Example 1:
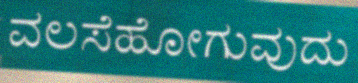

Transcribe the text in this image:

ವಲಸೆಹೋಗುವುದು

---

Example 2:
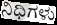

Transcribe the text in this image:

ನಿಧಿಗಳು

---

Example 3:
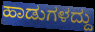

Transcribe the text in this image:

ಹಾಡುಗಳದ್ದು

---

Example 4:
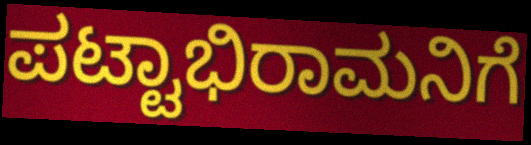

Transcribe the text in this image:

ಪಟ್ಟಾಭಿರಾಮನಿಗೆ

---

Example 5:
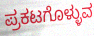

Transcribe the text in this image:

ಪ್ರಕಟಗೊಳ್ಳುವ